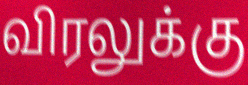
விரலுக்கு